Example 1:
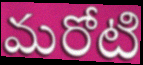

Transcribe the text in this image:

మరోటి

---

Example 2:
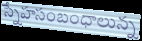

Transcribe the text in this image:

స్నేహసంబంధాలున్న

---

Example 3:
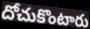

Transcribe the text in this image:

దోచుకొంటారు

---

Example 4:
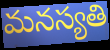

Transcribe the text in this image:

మనస్యతి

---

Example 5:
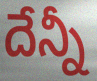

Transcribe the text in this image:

దేన్నీ